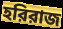
হরিরাজ